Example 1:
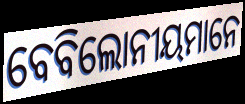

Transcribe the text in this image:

ବେବିଲୋନୀୟମାନେ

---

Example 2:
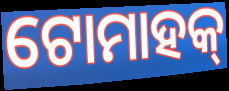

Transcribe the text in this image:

ଟୋମାହକ୍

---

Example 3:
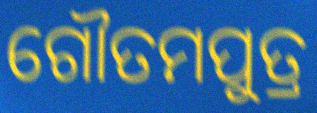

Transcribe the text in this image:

ଗୌତମପୁତ୍ର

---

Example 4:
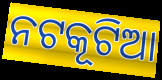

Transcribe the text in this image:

ନଟକୂଟିଆ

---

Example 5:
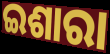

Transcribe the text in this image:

ଇଶାରା